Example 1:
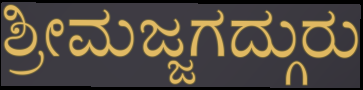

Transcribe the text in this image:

ಶ್ರೀಮಜ್ಜಗದ್ಗುರು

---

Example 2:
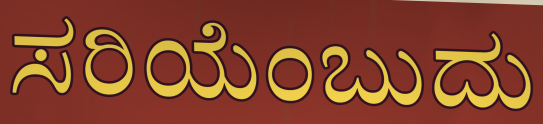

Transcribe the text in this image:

ಸರಿಯೆಂಬುದು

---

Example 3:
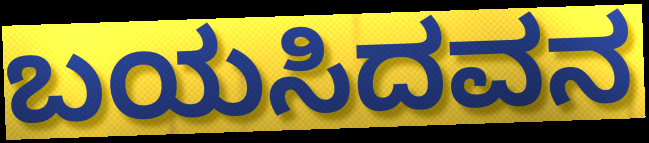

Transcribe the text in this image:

ಬಯಸಿದವನ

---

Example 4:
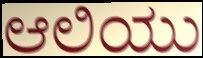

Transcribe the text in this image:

ಆಲಿಯು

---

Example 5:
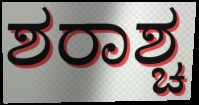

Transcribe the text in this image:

ಶರಾಶ್ಚ